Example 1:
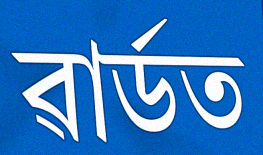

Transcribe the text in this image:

ৱাৰ্ডত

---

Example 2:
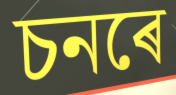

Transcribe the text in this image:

চনৰে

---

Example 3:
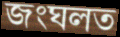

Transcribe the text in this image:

জংঘলত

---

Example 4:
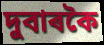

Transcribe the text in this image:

দুবাৰকৈ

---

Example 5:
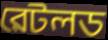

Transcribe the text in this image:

ৱেটলড